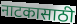
नाटकासाठी